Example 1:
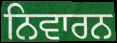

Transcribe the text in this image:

ਨਿਵਾਰਨ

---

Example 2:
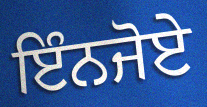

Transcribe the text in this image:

ਇੰਨਜੋਏ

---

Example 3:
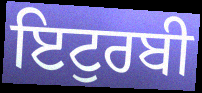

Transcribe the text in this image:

ਇਟੁਰਬੀ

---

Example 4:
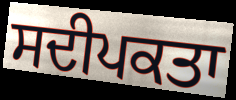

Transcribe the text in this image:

ਸਦੀਪਕਤਾ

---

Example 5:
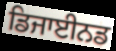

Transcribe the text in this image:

ਡਿਜਾਈਨਡ